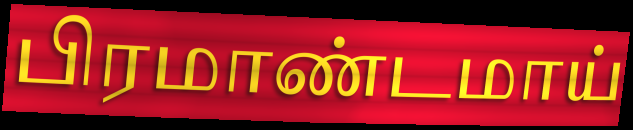
பிரமாண்டமாய்